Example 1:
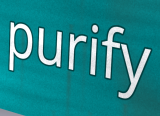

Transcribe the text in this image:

purify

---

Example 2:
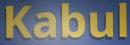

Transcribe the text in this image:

Kabul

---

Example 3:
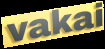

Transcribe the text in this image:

vakai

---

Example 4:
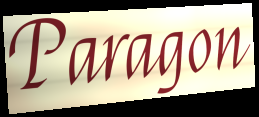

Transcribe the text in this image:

Paragon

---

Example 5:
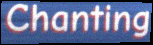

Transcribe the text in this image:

Chanting